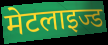
मेटलाइज्ड